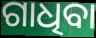
ଗାଧିବା